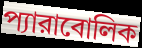
প্যারাবোলিক